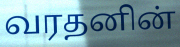
வரதனின்